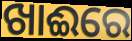
ଖାଈରେ